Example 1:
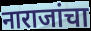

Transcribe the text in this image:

नाराजांचा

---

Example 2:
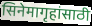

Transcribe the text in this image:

सिनेमागृहांसाठी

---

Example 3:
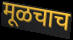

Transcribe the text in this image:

मूळचाच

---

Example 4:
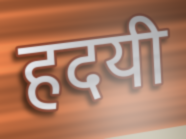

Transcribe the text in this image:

हदयी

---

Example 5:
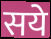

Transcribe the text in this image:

सये